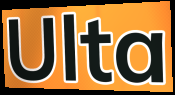
Ulta